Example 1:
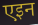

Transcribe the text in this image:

एइन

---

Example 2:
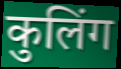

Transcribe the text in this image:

कुलिंग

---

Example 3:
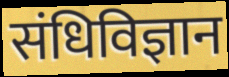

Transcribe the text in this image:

संधिविज्ञान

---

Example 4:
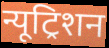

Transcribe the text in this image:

न्यूट्रिशन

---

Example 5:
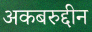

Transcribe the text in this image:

अकबरुद्दीन